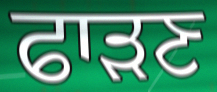
ਫਾੜਣ